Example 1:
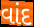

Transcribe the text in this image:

વાંદ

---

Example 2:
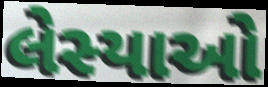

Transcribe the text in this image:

લેસ્યાઓ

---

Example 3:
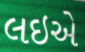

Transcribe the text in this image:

લઇએ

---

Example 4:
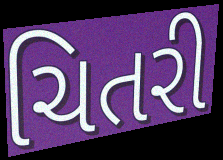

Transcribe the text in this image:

ચિતરી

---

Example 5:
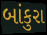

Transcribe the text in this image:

બાંકુરા